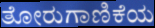
ತೋರುಗಾಣಿಕೆಯ